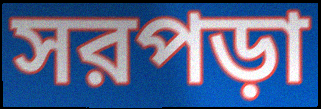
সরপড়া